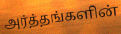
அர்த்தங்களின்